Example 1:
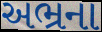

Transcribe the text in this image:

અભ્રના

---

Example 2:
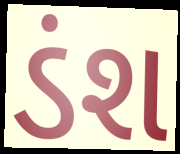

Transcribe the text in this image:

ડંશ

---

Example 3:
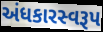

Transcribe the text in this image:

અંધકારસ્વરૂપ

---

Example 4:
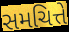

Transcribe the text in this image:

સમચિત્તે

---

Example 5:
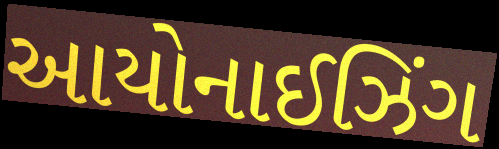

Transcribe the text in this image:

આયોનાઈઝિંગ